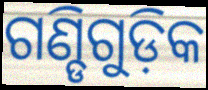
ଗଣ୍ଡିଗୁଡ଼ିକ